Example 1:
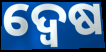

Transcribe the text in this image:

ଦ୍ବେଷ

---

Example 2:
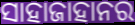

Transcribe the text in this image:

ସାହାଜାହାନର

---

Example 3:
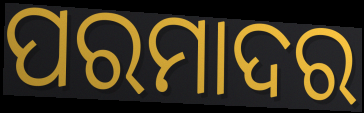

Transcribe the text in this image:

ପରମାଦର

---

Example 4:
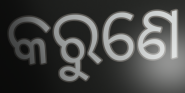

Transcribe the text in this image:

କରୁଣେ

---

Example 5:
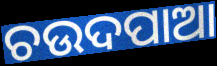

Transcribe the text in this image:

ଚଉଦପାଆ